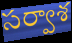
సర్వాశ